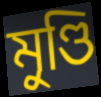
মুণ্ডি